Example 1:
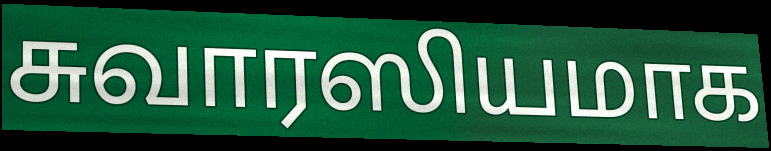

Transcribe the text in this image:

சுவாரஸியமாக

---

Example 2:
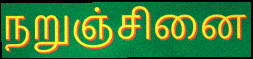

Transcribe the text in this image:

நறுஞ்சினை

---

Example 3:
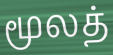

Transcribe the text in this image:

மூலத்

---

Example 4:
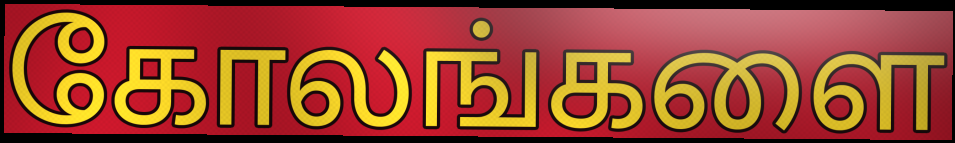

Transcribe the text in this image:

கோலங்களை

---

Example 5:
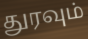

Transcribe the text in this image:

துரவும்